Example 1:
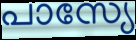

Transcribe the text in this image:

പാസ്യേ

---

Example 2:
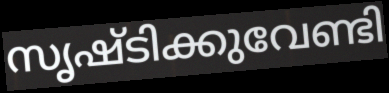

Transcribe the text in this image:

സൃഷ്ടിക്കുവേണ്ടി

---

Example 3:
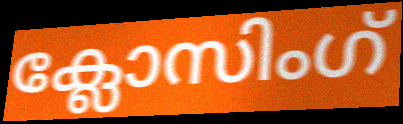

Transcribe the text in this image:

ക്ലോസിംഗ്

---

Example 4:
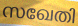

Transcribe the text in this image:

സഖേതി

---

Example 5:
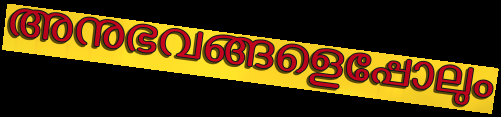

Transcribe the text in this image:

അനുഭവങ്ങളെപ്പോലും